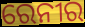
ରେନୀର